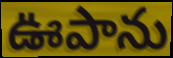
ఊపాను